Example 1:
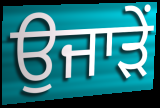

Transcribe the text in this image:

ਉਜਾੜੇਂ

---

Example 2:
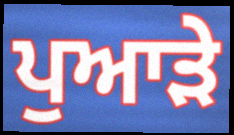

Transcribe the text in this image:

ਪੁਆੜੇ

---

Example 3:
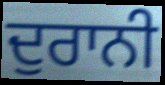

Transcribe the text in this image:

ਦੁਰਾਨੀ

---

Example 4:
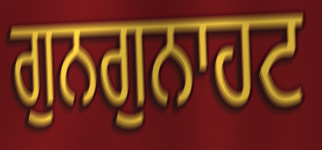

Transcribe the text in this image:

ਗੁਨਗੁਨਾਹਟ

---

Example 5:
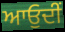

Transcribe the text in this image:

ਆਓੁਦੀਂ